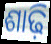
ଶାଢ଼ି